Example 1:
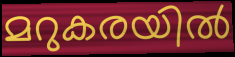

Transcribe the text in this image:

മറുകരയിൽ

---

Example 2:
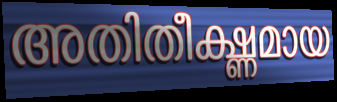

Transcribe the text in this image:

അതിതീക്ഷ്ണമായ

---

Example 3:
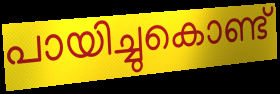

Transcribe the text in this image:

പായിച്ചുകൊണ്ട്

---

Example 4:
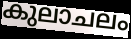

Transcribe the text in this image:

കുലാചലം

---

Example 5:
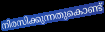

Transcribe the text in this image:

നിരസിക്കുന്നതുകൊണ്ട്